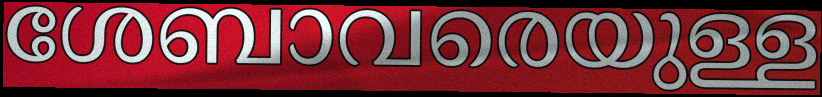
ശേബാവരെയുള്ള